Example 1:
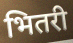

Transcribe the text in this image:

भितरी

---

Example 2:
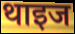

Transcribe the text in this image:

थाइज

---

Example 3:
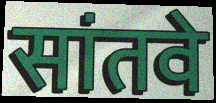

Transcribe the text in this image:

सांतवे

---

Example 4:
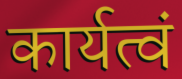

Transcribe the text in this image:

कार्यत्वं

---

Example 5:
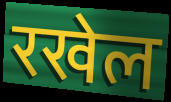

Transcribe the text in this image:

रखेल